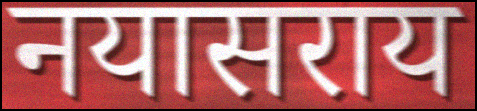
नयासराय